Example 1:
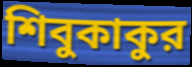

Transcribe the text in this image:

শিবুকাকুর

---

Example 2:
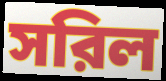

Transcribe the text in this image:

সরিল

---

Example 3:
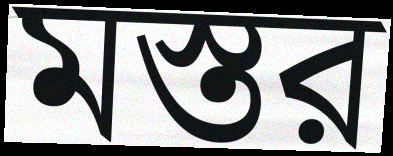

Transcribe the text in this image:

মস্তর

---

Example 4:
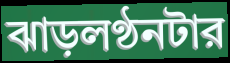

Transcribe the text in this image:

ঝাড়লণ্ঠনটার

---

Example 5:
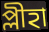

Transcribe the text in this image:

প্লীহা